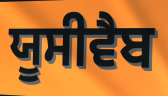
ਯੂਸੀਵੈਬ